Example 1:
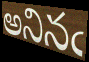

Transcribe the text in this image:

అనినఁ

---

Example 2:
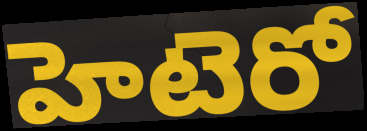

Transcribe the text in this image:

హెటెరో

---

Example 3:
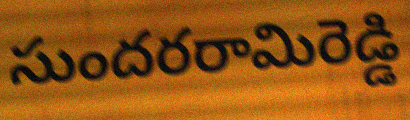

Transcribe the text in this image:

సుందరరామిరెడ్డి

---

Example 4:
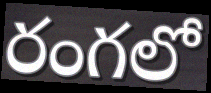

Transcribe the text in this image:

రంగలో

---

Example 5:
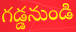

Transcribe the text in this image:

గడ్డనుండి